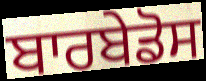
ਬਾਰਬੇਡੋਸ